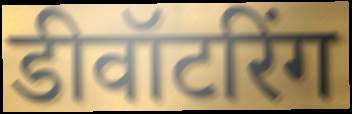
डीवॉटरिंग